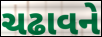
ચઢાવને